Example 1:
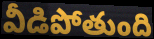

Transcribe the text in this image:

వీడిపోతుంది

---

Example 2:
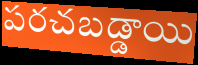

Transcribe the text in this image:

పరచబడ్డాయి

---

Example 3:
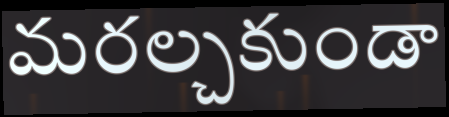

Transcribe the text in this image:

మరల్చకుండా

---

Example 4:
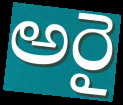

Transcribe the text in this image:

అరై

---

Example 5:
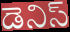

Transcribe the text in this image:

డెనిస్